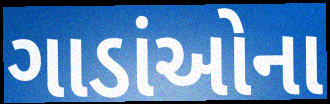
ગાડાંઓના